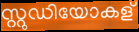
സ്റ്റുഡിയോകള്